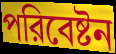
পরিবেষ্টন